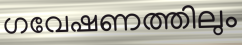
ഗവേഷണത്തിലും